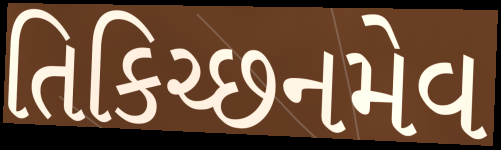
તિકિચ્છનમેવ